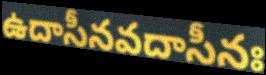
ఉదాసీనవదాసీనః